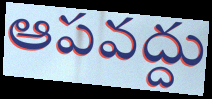
ఆపవద్దు